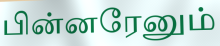
பின்னரேனும்